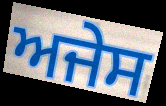
ਅਜੇਸ